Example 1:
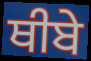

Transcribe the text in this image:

ਥੀਬੇ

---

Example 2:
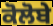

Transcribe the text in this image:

ਕੋਲੋਬੇ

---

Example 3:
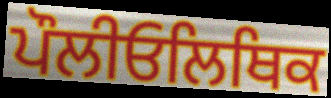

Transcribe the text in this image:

ਪੌਲੀਓਲਿਥਿਕ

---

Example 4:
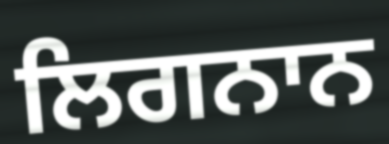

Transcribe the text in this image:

ਲਿਗਨਾਨ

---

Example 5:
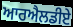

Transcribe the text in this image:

ਆਰਐਲਡੀਏ